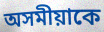
অসমীয়াকে